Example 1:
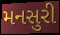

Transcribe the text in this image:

મનસુરી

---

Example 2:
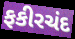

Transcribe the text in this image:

ફકીરચંદ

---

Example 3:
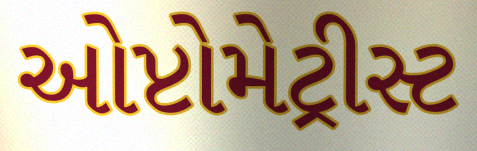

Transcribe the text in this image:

ઓપ્ટોમેટ્રીસ્ટ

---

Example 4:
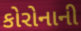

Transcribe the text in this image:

કોરોનાની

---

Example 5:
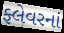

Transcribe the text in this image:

ફ્લેવરનાં